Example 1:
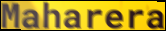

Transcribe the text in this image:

Maharera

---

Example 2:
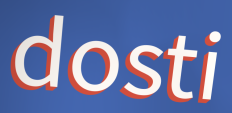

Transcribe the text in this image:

dosti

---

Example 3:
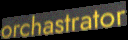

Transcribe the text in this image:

orchastrator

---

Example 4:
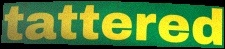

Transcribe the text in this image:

tattered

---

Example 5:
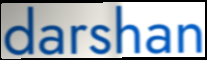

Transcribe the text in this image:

darshan